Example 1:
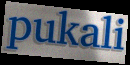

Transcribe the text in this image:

pukali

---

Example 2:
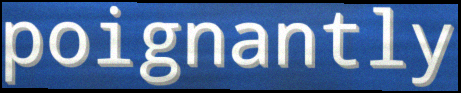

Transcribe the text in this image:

poignantly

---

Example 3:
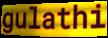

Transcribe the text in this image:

gulathi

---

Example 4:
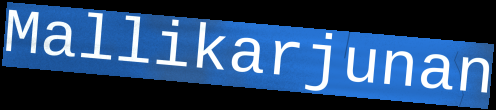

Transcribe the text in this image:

Mallikarjunan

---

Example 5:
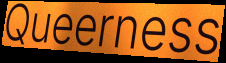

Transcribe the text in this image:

Queerness